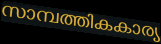
സാമ്പത്തികകാര്യ